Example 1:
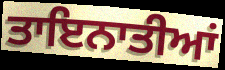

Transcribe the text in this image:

ਤਾਇਨਾਤੀਆਂ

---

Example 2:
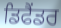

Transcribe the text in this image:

ਡਿਫੈਂਡਰ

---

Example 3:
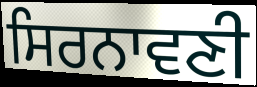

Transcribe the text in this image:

ਸਿਰਨਾਵਣੀ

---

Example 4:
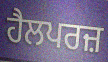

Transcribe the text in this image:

ਹੈਲਪਰਜ਼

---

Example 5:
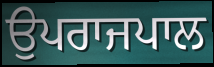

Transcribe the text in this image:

ਉਪਰਾਜਪਾਲ